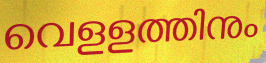
വെളളത്തിനും